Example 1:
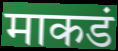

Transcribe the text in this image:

माकडं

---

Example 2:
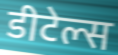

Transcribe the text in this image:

डीटेल्स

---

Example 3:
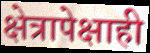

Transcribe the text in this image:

क्षेत्रापेक्षाही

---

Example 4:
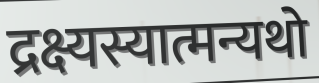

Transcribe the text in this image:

द्रक्ष्यस्यात्मन्यथो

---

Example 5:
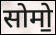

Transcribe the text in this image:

सोमो॒